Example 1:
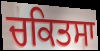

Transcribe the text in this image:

ਚਕਿਤਸਾ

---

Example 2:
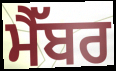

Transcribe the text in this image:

ਮੈੱਬਰ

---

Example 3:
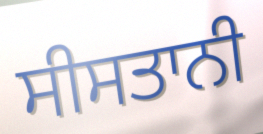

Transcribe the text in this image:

ਸੀਸਤਾਨੀ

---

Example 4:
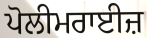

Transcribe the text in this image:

ਪੋਲੀਮਰਾਈਜ਼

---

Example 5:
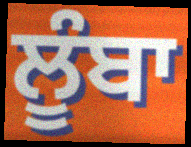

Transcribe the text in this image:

ਲੂੰਬਾ